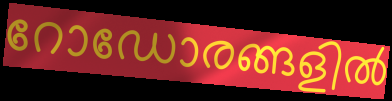
റോഡോരങ്ങളിൽ